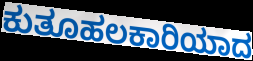
ಕುತೂಹಲಕಾರಿಯಾದ